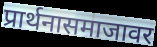
प्रार्थनासमाजावर